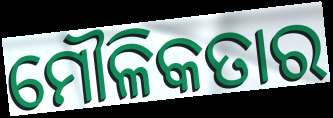
ମୌଳିକତାର